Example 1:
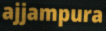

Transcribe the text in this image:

ajjampura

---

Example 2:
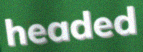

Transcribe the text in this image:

headed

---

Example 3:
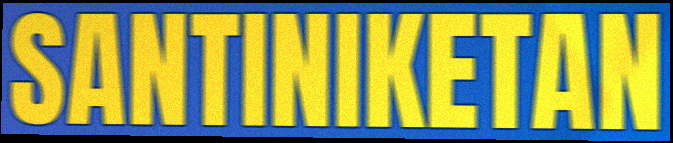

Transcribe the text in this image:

SANTINIKETAN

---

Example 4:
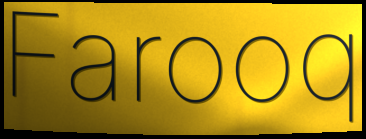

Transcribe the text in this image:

Farooq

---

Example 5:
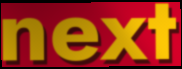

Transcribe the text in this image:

next